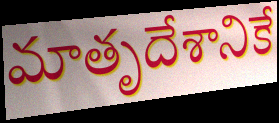
మాతృదేశానికే